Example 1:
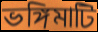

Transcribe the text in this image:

ভঙ্গিমাটি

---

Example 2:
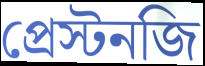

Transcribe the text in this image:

প্রেস্টনজি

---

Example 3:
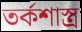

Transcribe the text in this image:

তর্কশাস্ত্র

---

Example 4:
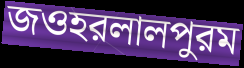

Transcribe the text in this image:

জওহরলালপুরম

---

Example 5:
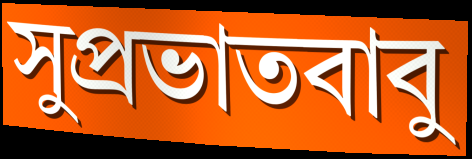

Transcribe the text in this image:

সুপ্রভাতবাবু